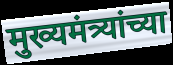
मुख्यमंत्र्यांच्या